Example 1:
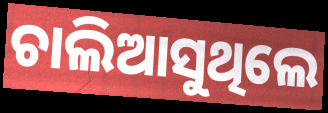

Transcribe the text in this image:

ଚାଲିଆସୁଥିଲେ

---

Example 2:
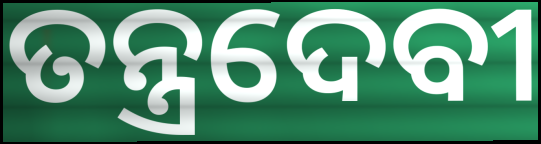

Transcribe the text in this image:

ତନ୍ତ୍ରଦେବୀ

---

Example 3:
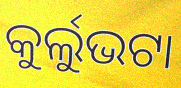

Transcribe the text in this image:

କୁର୍ଲୁଭଟା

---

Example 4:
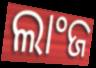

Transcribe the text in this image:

ଲାଂଜ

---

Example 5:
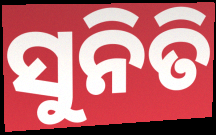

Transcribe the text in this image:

ସୁନିତି